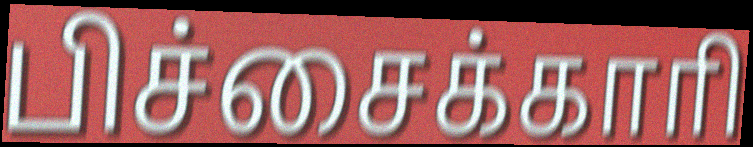
பிச்சைக்காரி